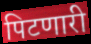
पिटणारी